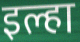
इल्हा